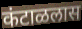
कंटाळलास